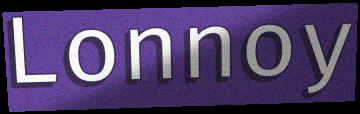
Lonnoy